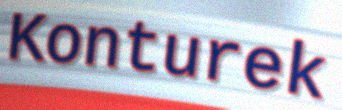
Konturek